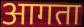
आगता